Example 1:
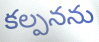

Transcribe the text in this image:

కల్పనను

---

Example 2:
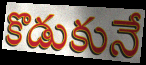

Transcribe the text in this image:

కొడుకునే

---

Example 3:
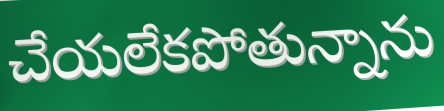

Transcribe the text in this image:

చేయలేకపోతున్నాను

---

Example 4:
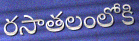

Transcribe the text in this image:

రసాతలంలోకి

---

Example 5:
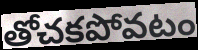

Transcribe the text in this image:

తోచకపోవటం